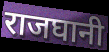
राजघानी